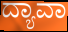
ದ್ಯಾವಾ